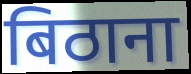
बिठाना